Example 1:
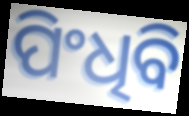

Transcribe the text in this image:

ପିଂଧିବି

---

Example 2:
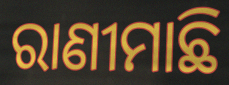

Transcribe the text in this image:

ରାଣୀମାଛି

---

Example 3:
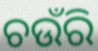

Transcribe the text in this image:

ଚଉଁରି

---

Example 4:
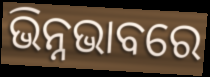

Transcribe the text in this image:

ଭିନ୍ନଭାବରେ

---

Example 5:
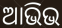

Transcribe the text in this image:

ଆଭିଭ